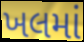
ખલમાં